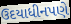
ઉદયાધીનપણે